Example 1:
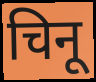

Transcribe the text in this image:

चिनू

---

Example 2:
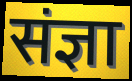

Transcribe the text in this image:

संज्ञा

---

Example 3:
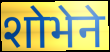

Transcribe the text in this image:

शोभेने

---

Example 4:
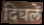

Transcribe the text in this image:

दिधलें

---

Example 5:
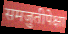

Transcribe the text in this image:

समजुतीपेक्षा